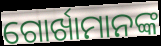
ଗୋର୍ଖାମାନଙ୍କ